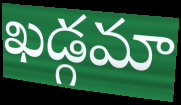
ఖడ్గమా